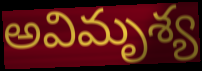
అవిమృశ్య